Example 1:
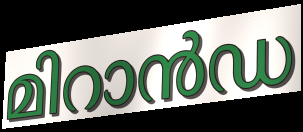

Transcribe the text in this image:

മിറാൻഡ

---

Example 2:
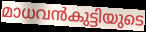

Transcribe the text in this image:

മാധവൻകുട്ടിയുടെ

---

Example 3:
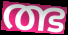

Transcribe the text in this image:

ത്ഭ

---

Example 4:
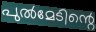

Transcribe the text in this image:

പുൽമേടിന്റെ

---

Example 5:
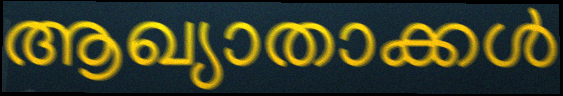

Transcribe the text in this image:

ആഖ്യാതാക്കൾ